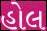
હોલ